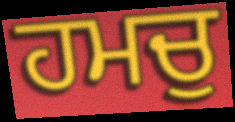
ਹਮਚੁ